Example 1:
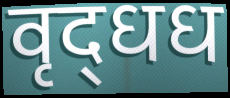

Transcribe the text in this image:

वृद्धध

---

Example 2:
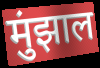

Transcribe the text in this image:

मुंझाल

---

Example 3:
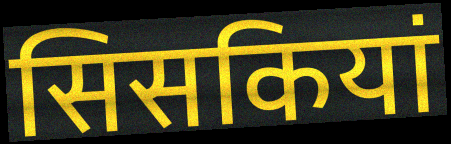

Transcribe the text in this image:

सिसकियां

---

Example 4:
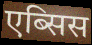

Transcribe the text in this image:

एब्सिस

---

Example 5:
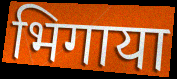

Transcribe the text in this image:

भिगाया